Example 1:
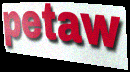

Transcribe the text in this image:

petaw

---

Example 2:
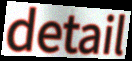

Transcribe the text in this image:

detail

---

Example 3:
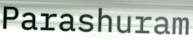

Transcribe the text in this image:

Parashuram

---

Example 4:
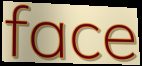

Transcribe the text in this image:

face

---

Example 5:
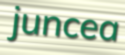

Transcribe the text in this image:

juncea